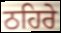
ਠਹਿਰੇ